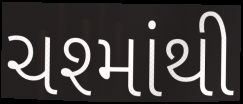
ચશ્માંથી